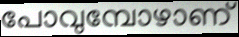
പോവുമ്പോഴാണ്